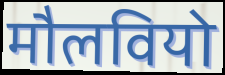
मौलवियो